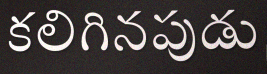
కలిగినపుడు